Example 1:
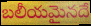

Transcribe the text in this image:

బలీయమైనదే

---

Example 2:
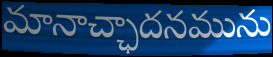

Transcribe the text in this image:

మానాచ్ఛాదనమును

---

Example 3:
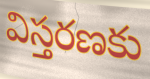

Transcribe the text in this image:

విస్తరణకు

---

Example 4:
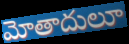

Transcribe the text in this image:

మోతాదులూ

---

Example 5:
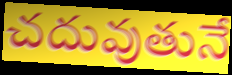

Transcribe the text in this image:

చదువుతునే